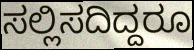
ಸಲ್ಲಿಸದಿದ್ದರೂ